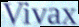
Vivax